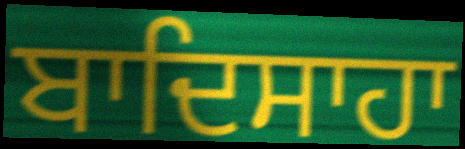
ਬਾਦਿਸਾਹਾ